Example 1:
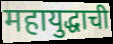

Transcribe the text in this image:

महायुद्धाची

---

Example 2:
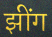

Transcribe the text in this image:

झींग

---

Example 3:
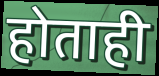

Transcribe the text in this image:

होताही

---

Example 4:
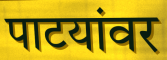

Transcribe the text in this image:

पाटयांवर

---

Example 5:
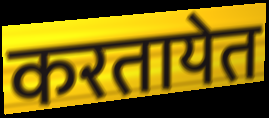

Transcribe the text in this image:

करतायेत